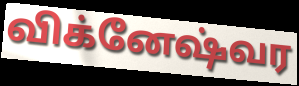
விக்னேஷ்வர